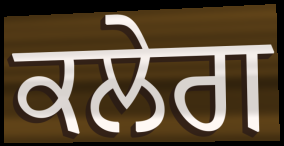
ਕਲੇਗ